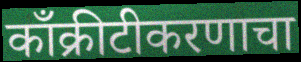
काँक्रीटीकरणाचा